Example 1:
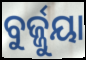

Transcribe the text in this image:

ବୁର୍ଜ୍ଜୁୟା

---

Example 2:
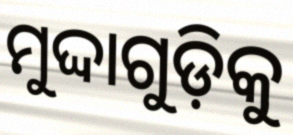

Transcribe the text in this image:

ମୁଦ୍ଦାଗୁଡ଼ିକୁ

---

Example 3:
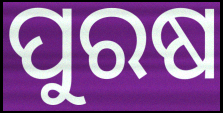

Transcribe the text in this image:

ପୁରଷ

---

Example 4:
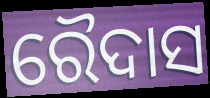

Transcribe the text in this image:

ରୈଦାସ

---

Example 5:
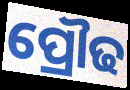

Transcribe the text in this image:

ପ୍ରୌଢ